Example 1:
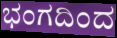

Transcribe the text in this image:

ಭಂಗದಿಂದ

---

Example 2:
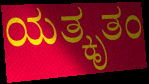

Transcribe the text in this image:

ಯತ್ಕೃತಂ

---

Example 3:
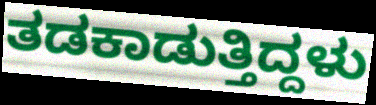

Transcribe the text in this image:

ತಡಕಾಡುತ್ತಿದ್ದಳು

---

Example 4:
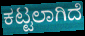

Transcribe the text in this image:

ಕಟ್ಟಲಾಗಿದೆ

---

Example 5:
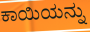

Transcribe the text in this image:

ಕಾಯಿಯನ್ನು